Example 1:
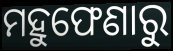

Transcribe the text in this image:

ମହୁଫେଣାରୁ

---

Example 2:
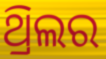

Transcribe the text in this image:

ଥ୍ରିଲର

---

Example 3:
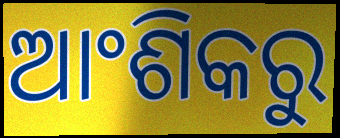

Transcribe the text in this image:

ଆଂଶିକରୁ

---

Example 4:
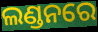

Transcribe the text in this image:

ଲଣ୍ଡନରେ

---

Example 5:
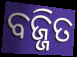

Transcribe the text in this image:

ବଜ୍ଜିତ